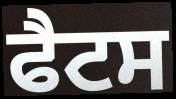
ਫੈਟਸ